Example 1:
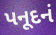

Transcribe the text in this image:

પનૂદનં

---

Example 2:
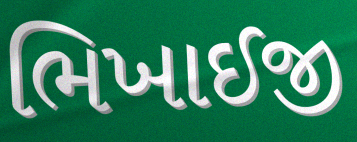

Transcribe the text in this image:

ભિખાઈજી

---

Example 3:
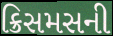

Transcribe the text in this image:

ક્રિસમસની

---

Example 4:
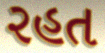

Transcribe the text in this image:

રહત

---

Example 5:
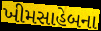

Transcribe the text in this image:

ખીમસાહેબના